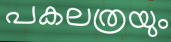
പകലത്രയും